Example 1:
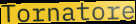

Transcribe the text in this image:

Tornatore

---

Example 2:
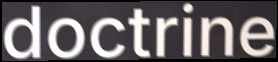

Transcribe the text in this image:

doctrine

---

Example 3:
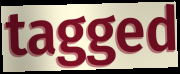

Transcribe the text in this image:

tagged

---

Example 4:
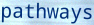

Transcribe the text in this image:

pathways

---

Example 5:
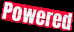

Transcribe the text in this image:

Powered